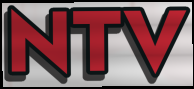
NTV